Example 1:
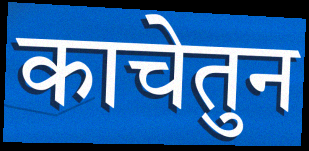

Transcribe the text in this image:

काचेतुन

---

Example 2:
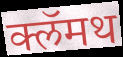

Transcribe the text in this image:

क्लॅमथ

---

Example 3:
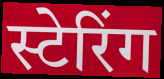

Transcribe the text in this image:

स्टेरिंग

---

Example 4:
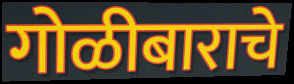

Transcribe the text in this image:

गोळीबाराचे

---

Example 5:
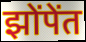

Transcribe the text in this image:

झोंपेंत